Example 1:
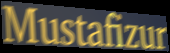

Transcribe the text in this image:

Mustafizur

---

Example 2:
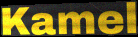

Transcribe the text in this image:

Kamel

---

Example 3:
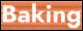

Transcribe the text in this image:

Baking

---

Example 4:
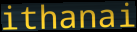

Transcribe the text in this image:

ithanai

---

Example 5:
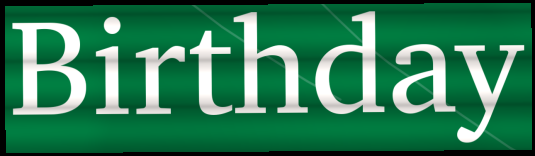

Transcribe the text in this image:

Birthday